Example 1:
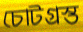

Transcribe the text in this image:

চোটগ্রস্ত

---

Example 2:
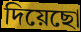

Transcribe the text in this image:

দিয়েছো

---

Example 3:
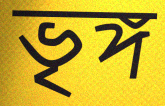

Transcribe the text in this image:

ভৃঙ্গ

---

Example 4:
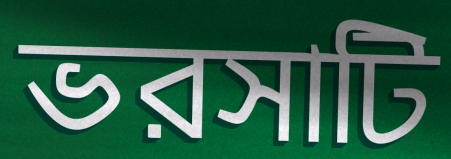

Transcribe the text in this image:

ভরসাটি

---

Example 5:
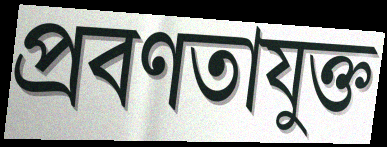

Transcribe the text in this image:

প্রবণতাযুক্ত